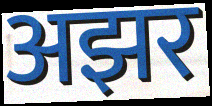
अझर